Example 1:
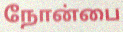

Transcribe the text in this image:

நோன்பை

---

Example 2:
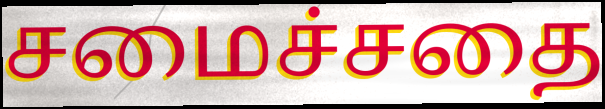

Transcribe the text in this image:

சமைச்சதை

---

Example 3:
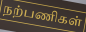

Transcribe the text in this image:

நற்பணிகள்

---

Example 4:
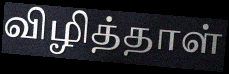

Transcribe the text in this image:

விழித்தாள்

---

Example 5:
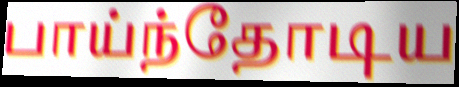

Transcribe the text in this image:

பாய்ந்தோடிய